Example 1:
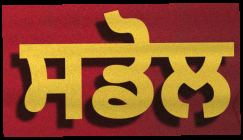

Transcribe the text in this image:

ਸਡੋਲ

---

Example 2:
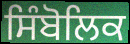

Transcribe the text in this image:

ਸਿੰਬੋਲਿਕ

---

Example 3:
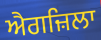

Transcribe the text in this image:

ਐਗਜ਼ਿਲਾ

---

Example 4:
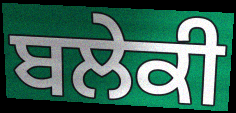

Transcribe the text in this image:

ਬਲੇਕੀ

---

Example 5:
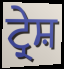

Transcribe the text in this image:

ਟ੍ਰੇਸ਼